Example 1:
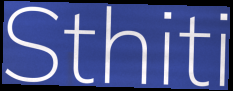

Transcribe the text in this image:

Sthiti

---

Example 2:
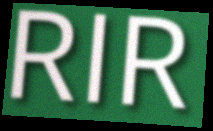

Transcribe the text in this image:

RIR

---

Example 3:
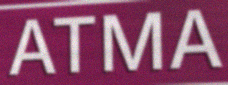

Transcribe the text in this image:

ATMA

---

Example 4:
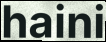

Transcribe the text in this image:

haini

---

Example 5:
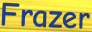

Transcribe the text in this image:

Frazer